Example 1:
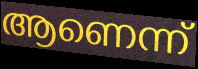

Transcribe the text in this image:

ആണെന്ന്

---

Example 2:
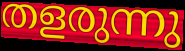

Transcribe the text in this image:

തളരുന്നു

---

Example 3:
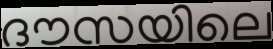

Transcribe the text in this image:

ദൗസയിലെ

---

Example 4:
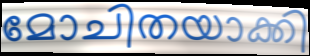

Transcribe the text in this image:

മോചിതയാക്കി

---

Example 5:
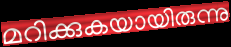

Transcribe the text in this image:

മറിക്കുകയായിരുന്നു